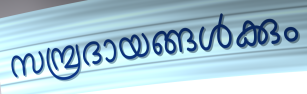
സമ്പ്രദായങ്ങൾക്കും